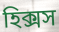
হিক্সস